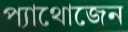
প্যাথোজেন